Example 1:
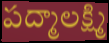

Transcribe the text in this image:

పద్మాలక్ష్మి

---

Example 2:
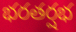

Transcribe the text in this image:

భరతర్షభ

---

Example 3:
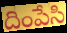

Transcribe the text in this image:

దింపేసి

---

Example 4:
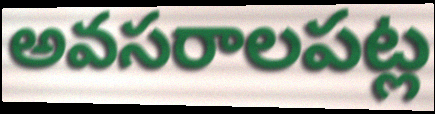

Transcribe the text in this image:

అవసరాలపట్ల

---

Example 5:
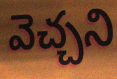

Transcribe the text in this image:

వెచ్చని